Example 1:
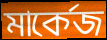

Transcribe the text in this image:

মার্কেজ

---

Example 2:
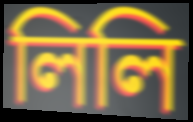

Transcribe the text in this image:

লিলি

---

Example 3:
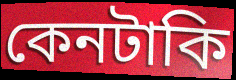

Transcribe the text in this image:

কেনটাকি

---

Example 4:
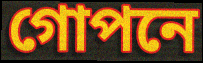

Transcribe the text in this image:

গোপনে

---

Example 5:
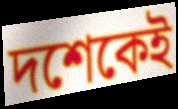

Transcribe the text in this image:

দশেকেই